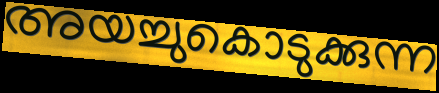
അയച്ചുകൊടുക്കുന്ന